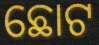
ଛୋଟ